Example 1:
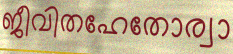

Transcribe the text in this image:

ജീവിതഹേതോര്വാ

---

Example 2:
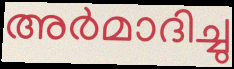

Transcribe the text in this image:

അർമാദിച്ചു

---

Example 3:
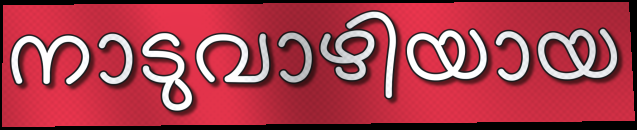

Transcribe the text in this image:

നാടുവാഴിയായ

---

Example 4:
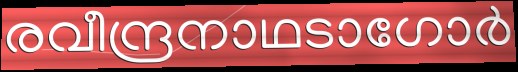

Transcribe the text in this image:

രവീന്ദ്രനാഥടാഗോർ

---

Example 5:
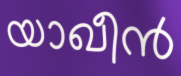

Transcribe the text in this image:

യാഖീൻ